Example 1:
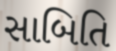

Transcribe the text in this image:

સાબિતિ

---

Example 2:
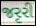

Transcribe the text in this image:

જરૃરી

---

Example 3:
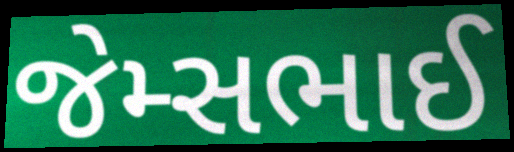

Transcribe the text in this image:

જેમ્સભાઈ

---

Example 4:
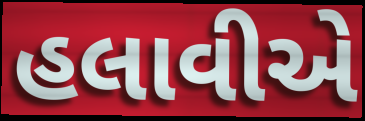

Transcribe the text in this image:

હલાવીએ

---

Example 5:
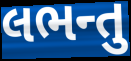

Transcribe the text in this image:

લભન્તુ